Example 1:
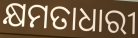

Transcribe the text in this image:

କ୍ଷମତାଧାରୀ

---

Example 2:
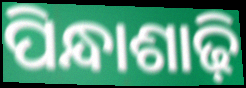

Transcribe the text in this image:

ପିନ୍ଧାଶାଢ଼ି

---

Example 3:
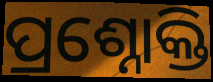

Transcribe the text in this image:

ପ୍ରଶ୍ନୋକ୍ତି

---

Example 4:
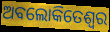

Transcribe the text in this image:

ଅବଲୋକିତେଶ୍ୱର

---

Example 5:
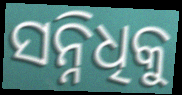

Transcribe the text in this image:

ସନ୍ନିଧିକୁ